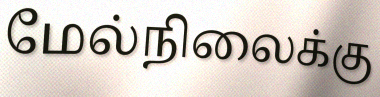
மேல்நிலைக்கு